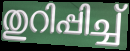
തുറിപ്പിച്ച്